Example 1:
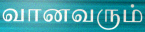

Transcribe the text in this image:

வானவரும்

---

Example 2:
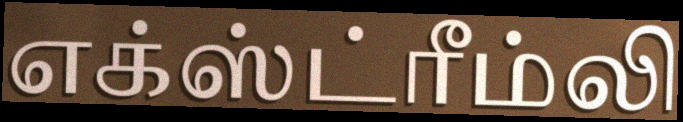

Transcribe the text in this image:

எக்ஸ்ட்ரீம்லி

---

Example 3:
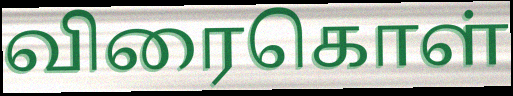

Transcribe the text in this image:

விரைகொள்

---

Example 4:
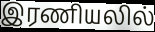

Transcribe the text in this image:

இரணியலில்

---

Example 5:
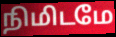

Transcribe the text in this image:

நிமிடமே